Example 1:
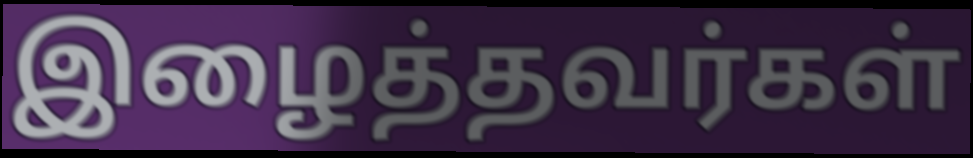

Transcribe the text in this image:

இழைத்தவர்கள்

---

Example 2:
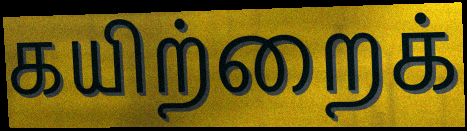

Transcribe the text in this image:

கயிற்றைக்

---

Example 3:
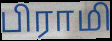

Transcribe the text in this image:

பிராமி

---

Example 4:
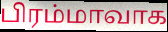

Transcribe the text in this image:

பிரம்மாவாக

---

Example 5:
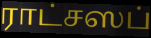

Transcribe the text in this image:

ராட்சஸப்